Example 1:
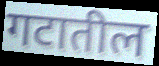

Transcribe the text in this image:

गटातील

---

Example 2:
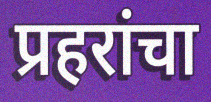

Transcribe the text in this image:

प्रहरांचा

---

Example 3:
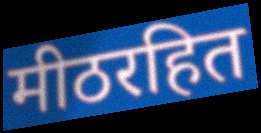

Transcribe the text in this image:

मीठरहित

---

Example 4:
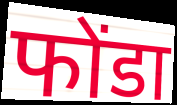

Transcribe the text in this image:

फोंडा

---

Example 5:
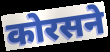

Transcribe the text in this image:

कोरसने